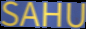
SAHU